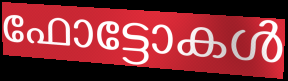
ഫോട്ടോകൾ